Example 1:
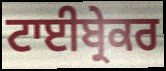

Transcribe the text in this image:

ਟਾਈਬ੍ਰੇਕਰ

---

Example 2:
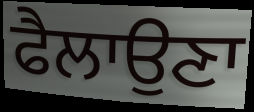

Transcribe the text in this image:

ਫੈਲਾਉਣਾ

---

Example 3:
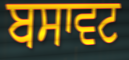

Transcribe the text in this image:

ਬਸਾਵਟ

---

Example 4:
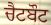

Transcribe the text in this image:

ਚੈਟਬੌਟ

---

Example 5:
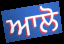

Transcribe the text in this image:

ਆਲੋ